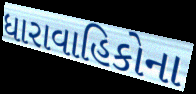
ધારાવાહિકોના